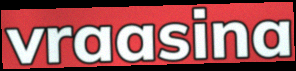
vraasina